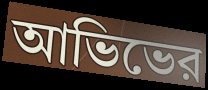
আভিভের